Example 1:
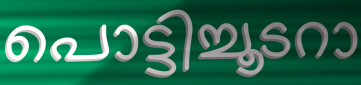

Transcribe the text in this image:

പൊട്ടിച്ചൂടറാ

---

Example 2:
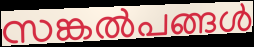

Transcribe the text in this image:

സങ്കൽപങ്ങൾ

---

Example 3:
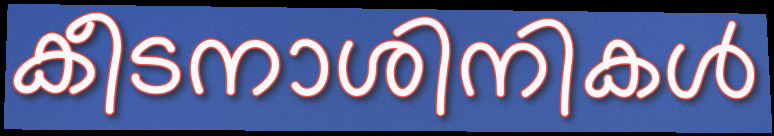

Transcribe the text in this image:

കീടനാശിനികൾ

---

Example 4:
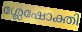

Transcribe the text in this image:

ശ്ലേഷോക്തി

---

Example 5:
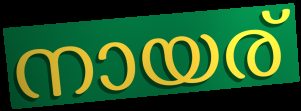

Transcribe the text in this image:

നായര്